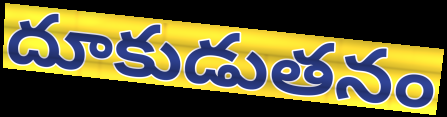
దూకుడుతనం